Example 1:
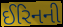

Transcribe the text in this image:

ઈરિનની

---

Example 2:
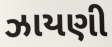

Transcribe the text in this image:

ઝાયણી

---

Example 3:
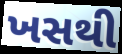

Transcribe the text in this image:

ખસથી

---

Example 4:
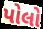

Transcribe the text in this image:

પોલો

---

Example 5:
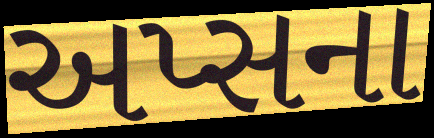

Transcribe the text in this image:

અપ્સના